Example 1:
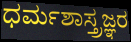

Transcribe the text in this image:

ಧರ್ಮಶಾಸ್ತ್ರಜ್ಞರ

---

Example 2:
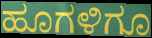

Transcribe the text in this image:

ಹೂಗಳಿಗೂ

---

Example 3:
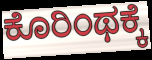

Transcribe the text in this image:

ಕೊರಿಂಥಕ್ಕೆ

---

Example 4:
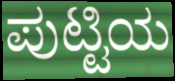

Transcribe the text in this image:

ಪುಟ್ಟಿಯ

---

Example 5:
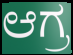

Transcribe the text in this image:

ಆಗ್ರ